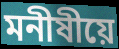
মনীষীয়ে